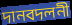
দানবদলনী